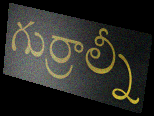
గుర్రాల్నీ